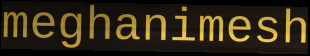
meghanimesh